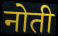
नोती